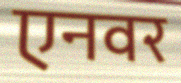
एनवर